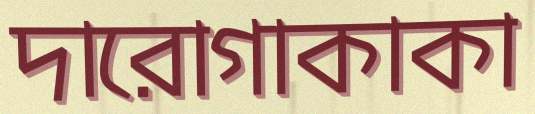
দারোগাকাকা